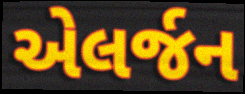
એલર્જન